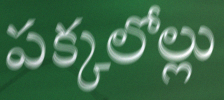
పక్కలోల్లు